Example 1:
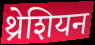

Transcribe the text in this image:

थ्रेशियन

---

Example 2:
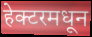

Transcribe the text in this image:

हेक्टरमधून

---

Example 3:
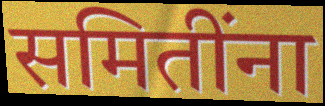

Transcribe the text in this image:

समितींना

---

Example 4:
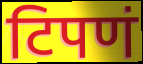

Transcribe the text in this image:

टिपणं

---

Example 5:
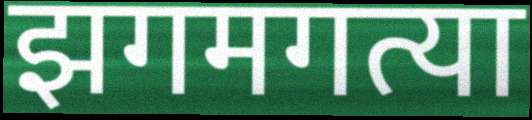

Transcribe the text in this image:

झगमगत्या